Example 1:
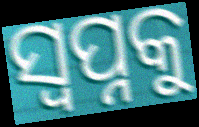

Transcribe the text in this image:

ସ୍ଵପ୍ନକୁ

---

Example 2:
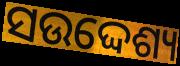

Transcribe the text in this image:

ସଉଦ୍ଦେଶ୍ୟ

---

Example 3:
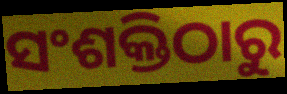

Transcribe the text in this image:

ସଂଶକ୍ତିଠାରୁ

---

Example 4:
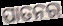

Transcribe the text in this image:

ପାତନର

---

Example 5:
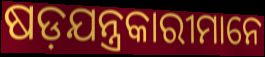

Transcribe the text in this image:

ଷଡ଼ଯନ୍ତ୍ରକାରୀମାନେ